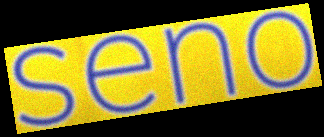
seno